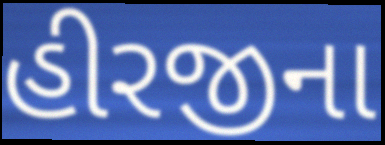
હીરજીના